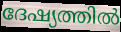
ദേഷ്യത്തിൽ